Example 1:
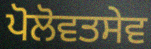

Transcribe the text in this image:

ਪੋਲੋਵਤਸੇਵ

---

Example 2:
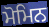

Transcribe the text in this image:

ਮੋਮਿਨ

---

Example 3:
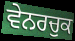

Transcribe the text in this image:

ਵੇਨਰਚੁਕ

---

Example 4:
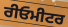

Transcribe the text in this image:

ਰੀਓਮੀਟਰ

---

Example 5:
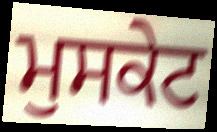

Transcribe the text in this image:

ਮੁਸਕੇਟ